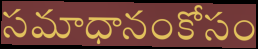
సమాధానంకోసం